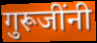
गुरूजींनी